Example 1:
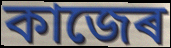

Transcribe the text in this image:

কাজেৰ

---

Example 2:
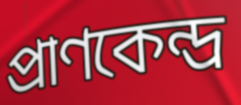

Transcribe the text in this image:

প্ৰাণকেন্দ্ৰ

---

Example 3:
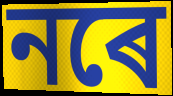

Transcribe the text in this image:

নৰে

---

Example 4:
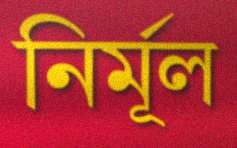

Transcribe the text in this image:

নিৰ্মূল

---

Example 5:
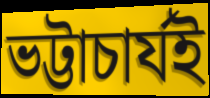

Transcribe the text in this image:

ভট্টাচাৰ্যই